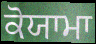
ਕੋਯਾਮਾ